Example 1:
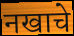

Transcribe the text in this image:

नखाचे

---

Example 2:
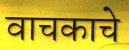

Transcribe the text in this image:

वाचकाचे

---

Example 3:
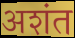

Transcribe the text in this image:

अशंत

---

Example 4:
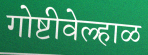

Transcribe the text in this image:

गोष्टीवेल्हाळ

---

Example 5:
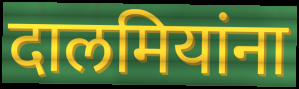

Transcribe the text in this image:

दालमियांना